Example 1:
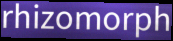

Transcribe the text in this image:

rhizomorph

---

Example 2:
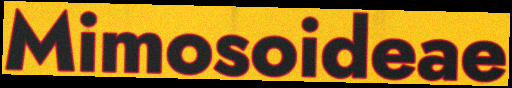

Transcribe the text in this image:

Mimosoideae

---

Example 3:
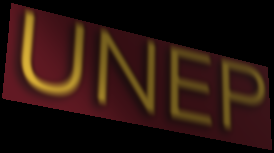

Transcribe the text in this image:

UNEP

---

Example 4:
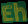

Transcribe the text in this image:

Eh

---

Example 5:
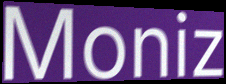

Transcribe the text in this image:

Moniz